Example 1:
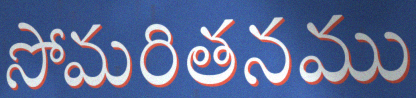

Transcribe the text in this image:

సోమరితనము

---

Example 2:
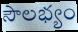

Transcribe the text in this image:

సౌలభ్యం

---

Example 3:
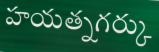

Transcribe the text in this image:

హయత్నగర్కు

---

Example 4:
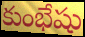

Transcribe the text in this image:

కుంభేషు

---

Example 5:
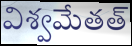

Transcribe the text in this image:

విశ్వమేతత్